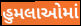
હુમલાઓમાં